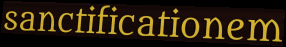
sanctificationem